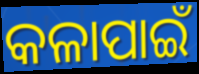
କଳାପାଇଁ